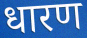
धारण